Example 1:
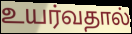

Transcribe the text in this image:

உயர்வதால்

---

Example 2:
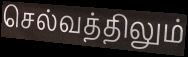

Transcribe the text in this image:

செல்வத்திலும்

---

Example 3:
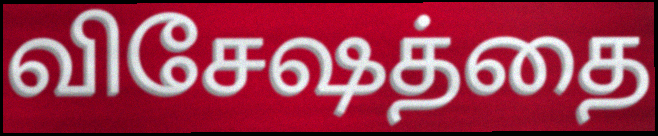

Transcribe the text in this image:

விசேஷத்தை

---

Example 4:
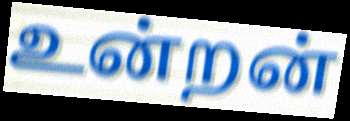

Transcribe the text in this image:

உன்றன்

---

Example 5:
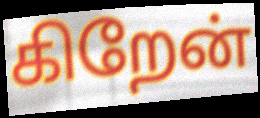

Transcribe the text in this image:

கிறேன்